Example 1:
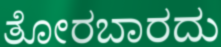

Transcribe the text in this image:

ತೋರಬಾರದು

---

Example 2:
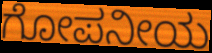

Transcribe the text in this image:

ಗೋಪನೀಯ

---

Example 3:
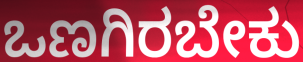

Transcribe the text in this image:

ಒಣಗಿರಬೇಕು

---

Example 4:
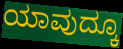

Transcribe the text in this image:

ಯಾವುದ್ಕೂ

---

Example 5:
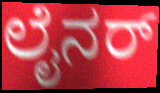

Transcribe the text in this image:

ಲೈನರ್